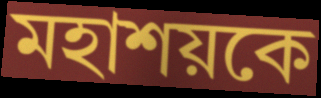
মহাশয়কে